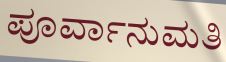
ಪೂರ್ವಾನುಮತಿ